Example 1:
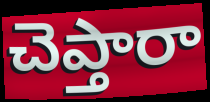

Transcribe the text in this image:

చెప్తారా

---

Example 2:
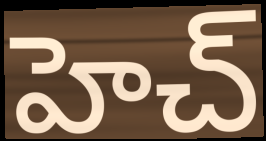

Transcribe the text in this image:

హెచ్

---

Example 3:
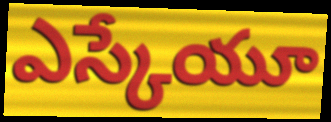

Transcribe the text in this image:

ఎస్కేయూ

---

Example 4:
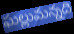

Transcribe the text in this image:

ఘల్లుమన్నది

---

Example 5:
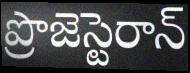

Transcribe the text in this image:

ప్రొజెస్టెరాన్